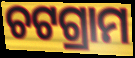
ଚଟଗ୍ରାମ